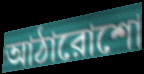
আঠারোশো